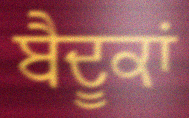
ਬੈਦੂਕਾਂ